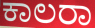
ಕಾಲರಾ